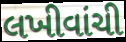
લખીવાંચી